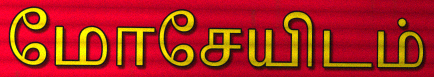
மோசேயிடம்